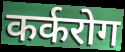
कर्करोग